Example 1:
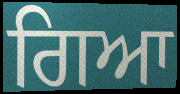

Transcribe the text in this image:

ਗਿਆ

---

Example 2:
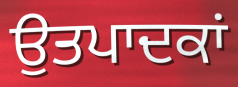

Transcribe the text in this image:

ਉਤਪਾਦਕਾਂ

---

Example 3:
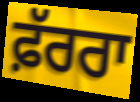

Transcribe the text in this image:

ਫ਼ੱਰਰਾ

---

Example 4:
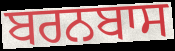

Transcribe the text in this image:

ਬਰਨਬਾਸ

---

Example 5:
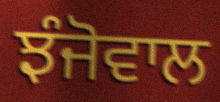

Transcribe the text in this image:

ਝੰਜੋਵਾਲ